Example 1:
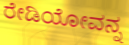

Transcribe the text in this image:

ರೇಡಿಯೋವನ್ನ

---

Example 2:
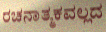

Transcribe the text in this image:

ರಚನಾತ್ಮಕವಲ್ಲದ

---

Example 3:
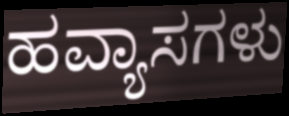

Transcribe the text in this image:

ಹವ್ಯಾಸಗಳು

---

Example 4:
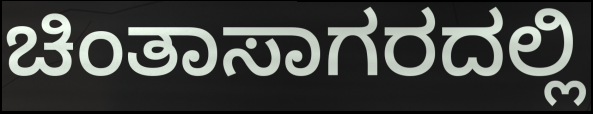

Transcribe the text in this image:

ಚಿಂತಾಸಾಗರದಲ್ಲಿ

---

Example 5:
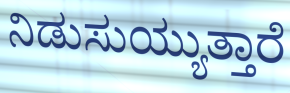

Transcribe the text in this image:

ನಿಡುಸುಯ್ಯುತ್ತಾರೆ